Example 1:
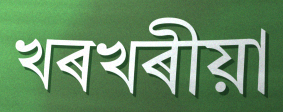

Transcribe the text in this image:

খৰখৰীয়া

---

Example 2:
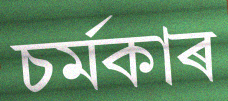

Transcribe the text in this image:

চৰ্মকাৰ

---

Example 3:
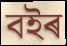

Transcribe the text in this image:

বইৰ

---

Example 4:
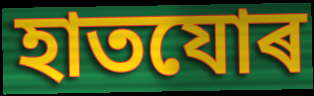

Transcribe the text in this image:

হাতযোৰ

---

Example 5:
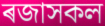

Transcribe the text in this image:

ৰজাসকল